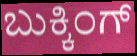
ಬುಕ್ಕಿಂಗ್